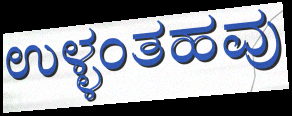
ಉಳ್ಳಂತಹವು